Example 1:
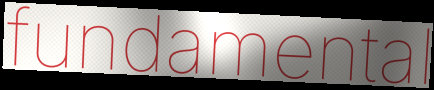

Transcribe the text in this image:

fundamental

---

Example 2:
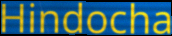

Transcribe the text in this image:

Hindocha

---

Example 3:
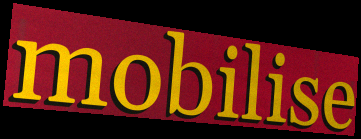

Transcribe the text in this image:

mobilise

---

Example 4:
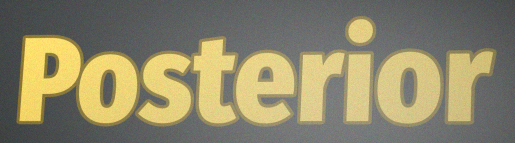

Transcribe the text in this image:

Posterior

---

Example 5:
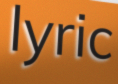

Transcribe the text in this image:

lyric